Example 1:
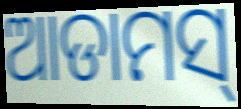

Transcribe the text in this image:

ଆଡାମସ୍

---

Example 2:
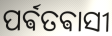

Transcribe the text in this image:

ପର୍ଵତଵାସୀ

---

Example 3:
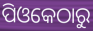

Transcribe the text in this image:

ପିଓକେଠାରୁ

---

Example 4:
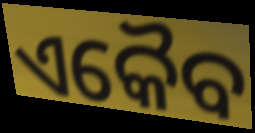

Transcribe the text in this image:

ଏକୈବ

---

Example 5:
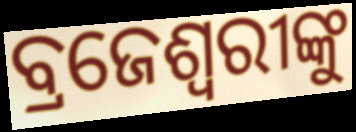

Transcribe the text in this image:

ବ୍ରଜେଶ୍ୱରୀଙ୍କୁ